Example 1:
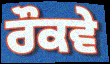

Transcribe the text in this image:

ਰੌਕਵੇ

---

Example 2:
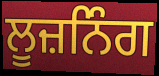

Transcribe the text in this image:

ਲੂਜ਼ਨਿੰਗ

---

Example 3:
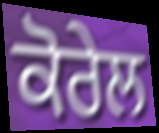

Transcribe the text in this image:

ਕੋਰੇਲ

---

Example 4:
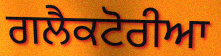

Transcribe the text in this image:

ਗਲੈਕਟੋਰੀਆ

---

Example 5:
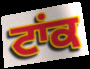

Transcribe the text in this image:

ਟਾਂਕ